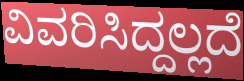
ವಿವರಿಸಿದ್ದಲ್ಲದೆ